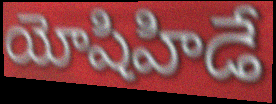
యోషిహిడే